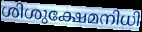
ശിശുക്ഷേമനിധി